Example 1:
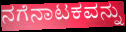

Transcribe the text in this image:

ನಗೆನಾಟಕವನ್ನು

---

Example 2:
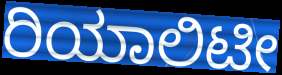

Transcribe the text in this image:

ರಿಯಾಲಿಟೀ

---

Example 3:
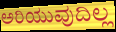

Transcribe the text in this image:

ಅರಿಯುವುದಿಲ್ಲ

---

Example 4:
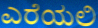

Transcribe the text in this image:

ಎರೆಯಲಿ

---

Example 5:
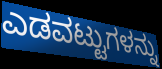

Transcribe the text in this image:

ಎಡವಟ್ಟುಗಳನ್ನು